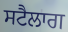
ਸਟੈਲਾਗ